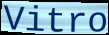
Vitro